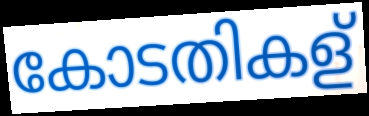
കോടതികള്